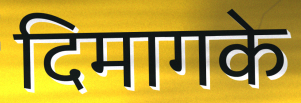
दिमागके